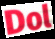
Dol